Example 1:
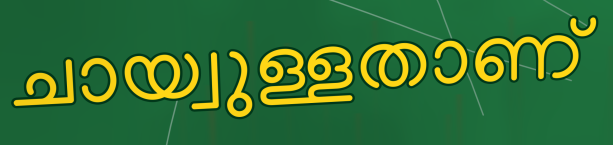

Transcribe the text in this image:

ചായ്വുള്ളതാണ്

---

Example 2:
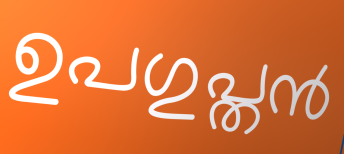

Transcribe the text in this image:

ഉപഗുപ്തൻ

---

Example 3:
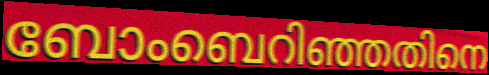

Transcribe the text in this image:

ബോംബെറിഞ്ഞതിനെ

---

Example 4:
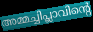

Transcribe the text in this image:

അമ്മച്ചിപ്ലാവിന്റെ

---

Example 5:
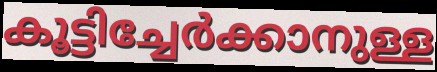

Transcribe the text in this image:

കൂട്ടിച്ചേർക്കാനുള്ള